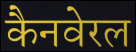
कैनवेरल